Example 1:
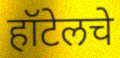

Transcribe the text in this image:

हॉटेलचे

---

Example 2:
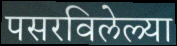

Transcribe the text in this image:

पसरविलेल्या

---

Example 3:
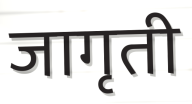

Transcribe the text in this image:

जागृती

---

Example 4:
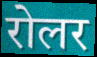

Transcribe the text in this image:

रोलर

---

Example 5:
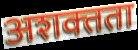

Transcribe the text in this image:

अशक्‍तता